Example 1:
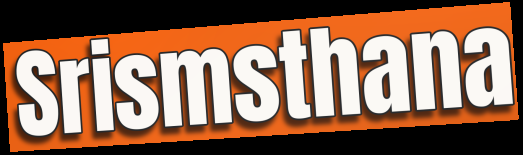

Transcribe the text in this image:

Srismsthana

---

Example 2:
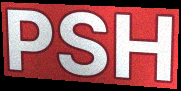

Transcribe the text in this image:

PSH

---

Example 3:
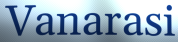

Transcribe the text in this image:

Vanarasi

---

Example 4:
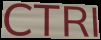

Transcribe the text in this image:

CTRI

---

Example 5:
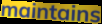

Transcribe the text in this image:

maintains